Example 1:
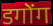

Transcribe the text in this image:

डगोंग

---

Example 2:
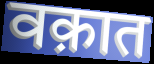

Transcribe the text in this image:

वक़ात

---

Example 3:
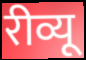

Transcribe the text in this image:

रीव्यू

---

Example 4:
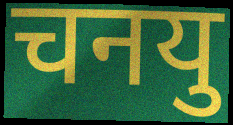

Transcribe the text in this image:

चनयु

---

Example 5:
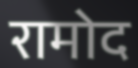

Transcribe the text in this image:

रामोद